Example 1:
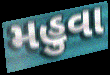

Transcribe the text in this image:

મહુવા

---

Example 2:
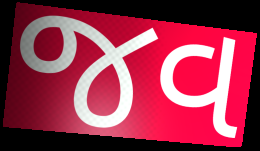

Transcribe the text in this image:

જવ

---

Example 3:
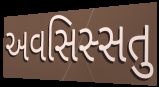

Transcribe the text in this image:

અવસિસ્સતુ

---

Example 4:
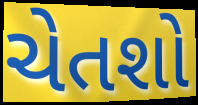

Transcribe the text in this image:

ચેતશો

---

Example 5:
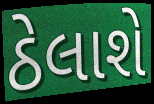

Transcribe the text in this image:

ઠેલાશે